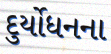
દુર્યોધનના